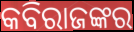
କବିରାଜଙ୍କର